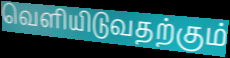
வெளியிடுவதற்கும்